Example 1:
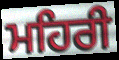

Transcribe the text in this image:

ਮਹਿਰੀ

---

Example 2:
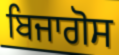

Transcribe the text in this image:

ਬਿਜਾਗੋਸ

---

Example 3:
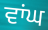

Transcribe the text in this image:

ਵਾਂਘ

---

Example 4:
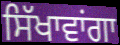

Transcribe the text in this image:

ਸਿੱਖਾਵਾਂਗਾ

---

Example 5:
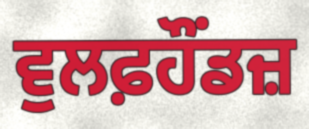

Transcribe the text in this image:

ਵੁਲਫ਼ਹੌਂਡਜ਼